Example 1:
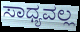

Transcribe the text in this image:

ಸಾಧ್ಯವಲ್ಲ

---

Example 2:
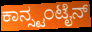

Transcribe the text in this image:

ಕಾನ್ಸ್ಟಂಟೈನ್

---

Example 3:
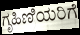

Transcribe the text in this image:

ಗೃಹಿಣಿಯರಿಗೆ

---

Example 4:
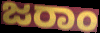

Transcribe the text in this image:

ಜರಾಂ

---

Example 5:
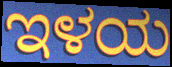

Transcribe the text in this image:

ಇಳಯ